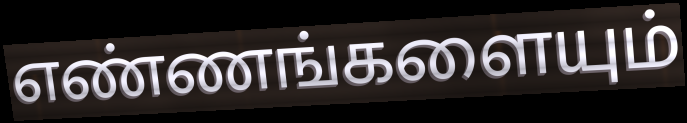
எண்ணங்களையும்